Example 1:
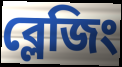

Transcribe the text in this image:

ব্লেজিং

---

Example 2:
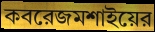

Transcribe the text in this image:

কবরেজমশাইয়ের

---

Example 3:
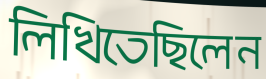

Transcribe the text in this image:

লিখিতেছিলেন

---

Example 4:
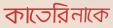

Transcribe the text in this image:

কাতেরিনাকে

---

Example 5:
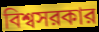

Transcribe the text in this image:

বিশ্বসরকার